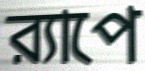
র‍্যাপে